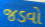
જડવો